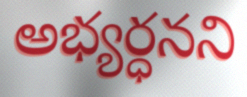
అభ్యర్ధనని